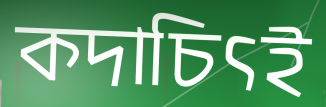
কদাচিৎই